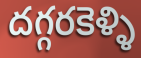
దగ్గరకెళ్ళి